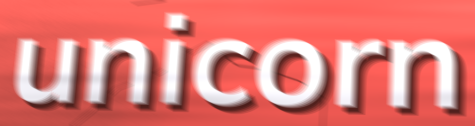
unicorn